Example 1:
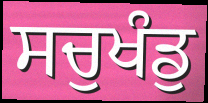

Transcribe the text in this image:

ਸਚੁਖੰਡੁ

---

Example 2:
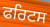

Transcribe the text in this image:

ਫਰਿਟਸ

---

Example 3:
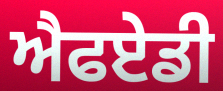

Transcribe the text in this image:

ਐਫਏਡੀ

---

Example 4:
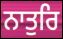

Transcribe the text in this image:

ਨਾਤੁਰਿ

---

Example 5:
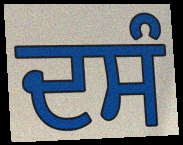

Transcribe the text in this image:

ਦਸੰ